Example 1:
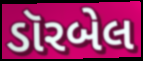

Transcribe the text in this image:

ડૉરબેલ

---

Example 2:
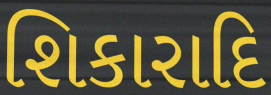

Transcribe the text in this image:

શિકારાદિ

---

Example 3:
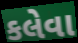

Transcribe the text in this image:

કલેવા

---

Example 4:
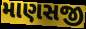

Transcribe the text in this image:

માણસજી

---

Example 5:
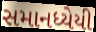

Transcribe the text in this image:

સમાનધ્યેયી